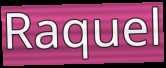
Raquel